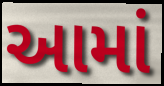
આમાં